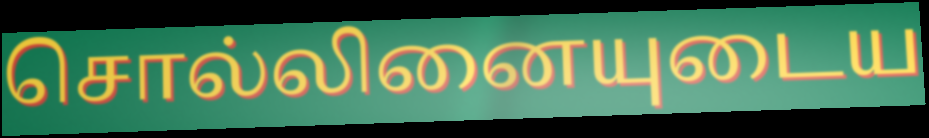
சொல்லினையுடைய